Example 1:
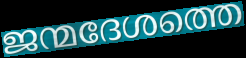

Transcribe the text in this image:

ജന്മദേശത്തെ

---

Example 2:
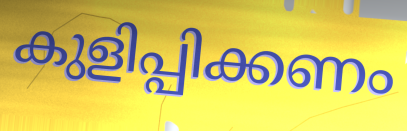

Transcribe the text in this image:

കുളിപ്പിക്കണം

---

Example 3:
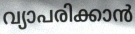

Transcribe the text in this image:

വ്യാപരിക്കാൻ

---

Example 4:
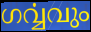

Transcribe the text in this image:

ഗൎവ്വവും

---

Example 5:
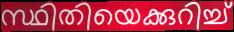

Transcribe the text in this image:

സ്ഥിതിയെക്കുറിച്ച്